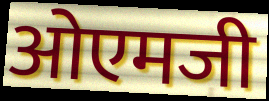
ओएमजी